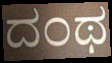
ದಂಥ